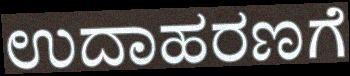
ಉದಾಹರಣಗೆ